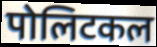
पोलिटकल